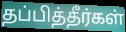
தப்பித்தீர்கள்